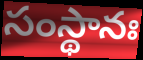
సంస్థానః